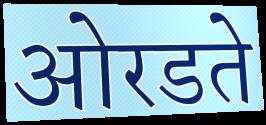
ओरडते